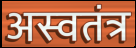
अस्वतंत्र